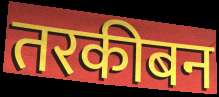
तरकीबन